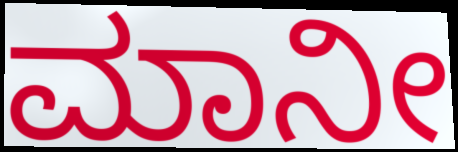
ಮಾನೀ